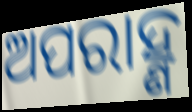
ଅପରାହ୍ଣ